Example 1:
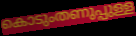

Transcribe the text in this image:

കൊടുംതണുപ്പുള്ള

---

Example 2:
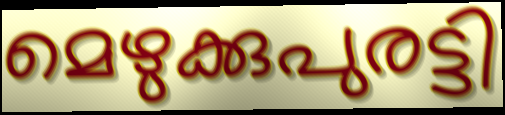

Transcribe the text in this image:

മെഴുക്കുപുരട്ടി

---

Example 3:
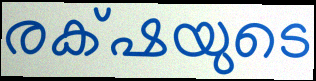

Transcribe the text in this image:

രക്‌ഷയുടെ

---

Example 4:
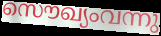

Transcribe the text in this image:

സൌഖ്യംവന്നു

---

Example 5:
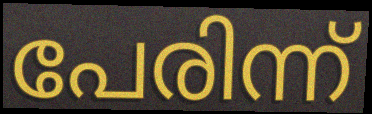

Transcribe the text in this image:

പേരിന്ന്